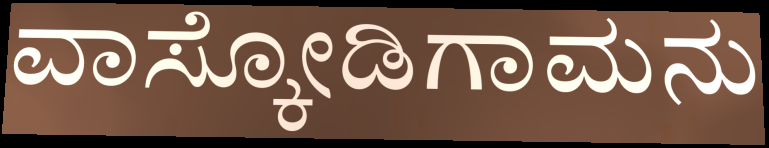
ವಾಸ್ಕೋಡಿಗಾಮನು